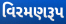
વિરમણરૂપ